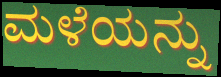
ಮಳೆಯನ್ನು